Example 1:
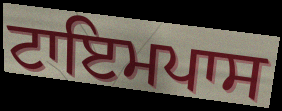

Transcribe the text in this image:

ਟਾਇਮਪਾਸ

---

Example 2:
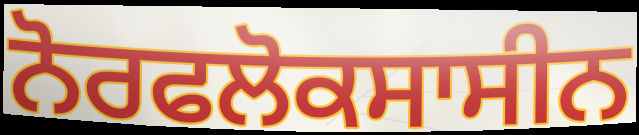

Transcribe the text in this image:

ਨੋਰਫਲੋਕਸਾਸੀਨ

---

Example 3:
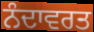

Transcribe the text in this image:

ਨੰਦਾਵਰਤ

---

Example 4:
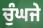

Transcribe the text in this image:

ਚੁੰਘਜੇ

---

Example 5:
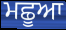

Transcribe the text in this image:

ਮਛੂਆ